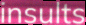
insults